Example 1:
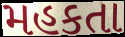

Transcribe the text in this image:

મહકતા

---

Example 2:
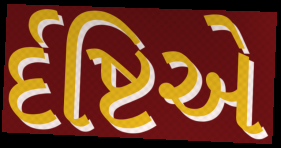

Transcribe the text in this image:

ર્દષ્ટિએ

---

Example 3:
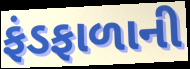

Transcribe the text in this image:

ફંડફાળાની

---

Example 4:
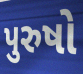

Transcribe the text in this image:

પુરુષો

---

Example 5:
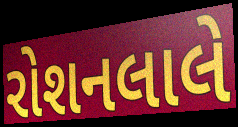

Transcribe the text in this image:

રોશનલાલે